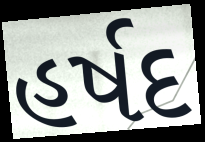
હર્ષદ